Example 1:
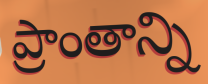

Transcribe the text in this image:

ప్రాంతాన్ని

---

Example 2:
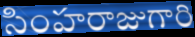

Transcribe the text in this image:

సింహరాజుగారి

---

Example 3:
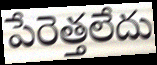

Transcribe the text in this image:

పేరెత్తలేదు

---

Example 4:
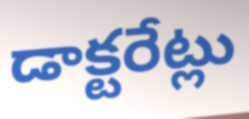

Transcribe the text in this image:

డాక్టరేట్లు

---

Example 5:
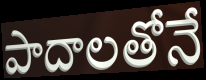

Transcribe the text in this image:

పాదాలతోనే